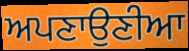
ਅਪਣਾਉਣੀਆ